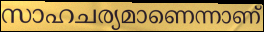
സാഹചര്യമാണെന്നാണ്